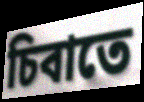
চিবাতে